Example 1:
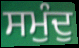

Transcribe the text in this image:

ਸਮੁੰਦੁ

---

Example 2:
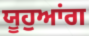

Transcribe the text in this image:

ਯੂਹੁਆਂਗ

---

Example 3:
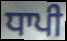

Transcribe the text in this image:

ਧਾਪੀ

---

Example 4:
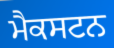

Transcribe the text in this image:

ਮੈਕਸਟਨ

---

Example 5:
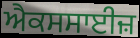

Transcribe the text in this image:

ਐਕਸਸਾਈਜ਼